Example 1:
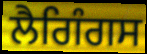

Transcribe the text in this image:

ਲੈਗਿੰਗਸ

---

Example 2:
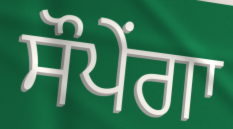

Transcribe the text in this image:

ਸੌਪੇਂਗਾ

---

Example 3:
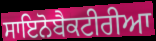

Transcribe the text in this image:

ਸਾਇਨੋਬੈਕਟੀਰੀਆ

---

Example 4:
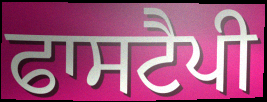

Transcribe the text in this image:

ਫਾਸਟੈਪੀ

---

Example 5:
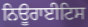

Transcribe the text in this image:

ਨਿਊਰਾਈਟਿਸ